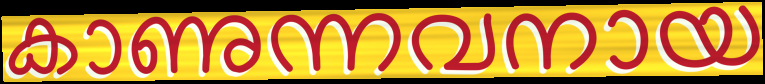
കാണുന്നവനായ